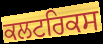
ਕਲਟਰਿਕਸ